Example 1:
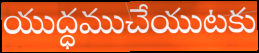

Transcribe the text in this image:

యుద్ధముచేయుటకు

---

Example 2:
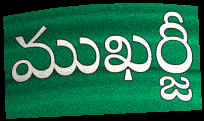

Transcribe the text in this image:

ముఖర్జీ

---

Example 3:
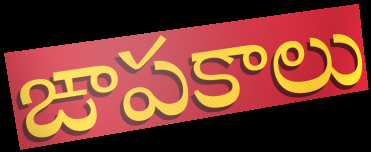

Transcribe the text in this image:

ఙాపకాలు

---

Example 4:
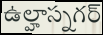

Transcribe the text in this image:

ఉల్హాస్నగర్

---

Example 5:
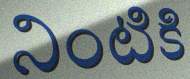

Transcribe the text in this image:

నింటికి